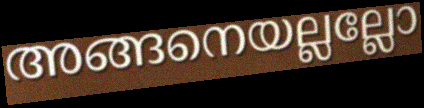
അങ്ങനെയല്ലല്ലോ